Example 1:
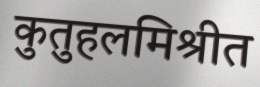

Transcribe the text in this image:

कुतुहलमिश्रीत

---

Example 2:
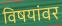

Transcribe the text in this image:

विषयांवर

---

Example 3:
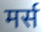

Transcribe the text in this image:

मर्स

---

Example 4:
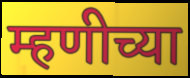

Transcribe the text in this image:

म्हणीच्या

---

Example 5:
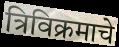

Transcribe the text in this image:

त्रिविक्रमाचे